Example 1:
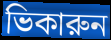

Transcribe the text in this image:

ভিকারুন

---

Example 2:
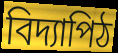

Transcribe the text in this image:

বিদ্যাপিঠ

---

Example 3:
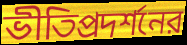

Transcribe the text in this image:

ভীতিপ্রদর্শনের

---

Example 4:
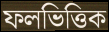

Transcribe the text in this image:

ফলভিত্তিক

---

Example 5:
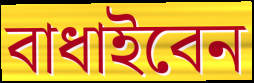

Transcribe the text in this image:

বাধাইবেন